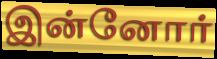
இன்னோர்